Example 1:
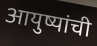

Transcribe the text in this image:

आयुष्यांची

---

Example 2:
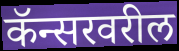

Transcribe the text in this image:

कॅन्सरवरील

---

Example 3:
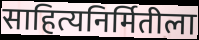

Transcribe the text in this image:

साहित्यनिर्मितीला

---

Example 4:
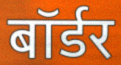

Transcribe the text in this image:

बॉर्डर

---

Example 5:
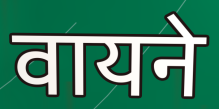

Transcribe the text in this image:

वायने